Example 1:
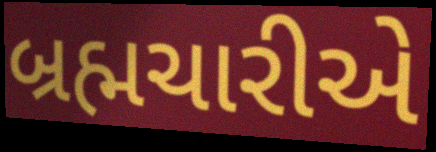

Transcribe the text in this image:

બ્રહ્મચારીએ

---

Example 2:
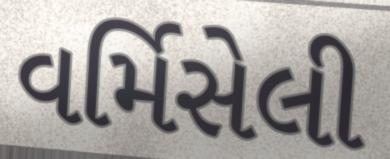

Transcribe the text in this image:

વર્મિસેલી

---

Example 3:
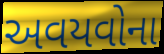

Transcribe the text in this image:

અવયવોના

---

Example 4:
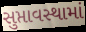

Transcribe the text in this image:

સુપ્તાવસ્થામાં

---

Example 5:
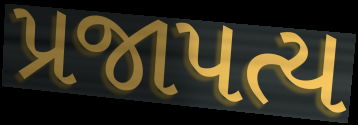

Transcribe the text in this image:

પ્રજાપત્ય